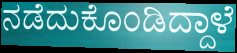
ನಡೆದುಕೊಂಡಿದ್ದಾಳೆ